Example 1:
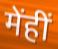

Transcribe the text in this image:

मेंहीं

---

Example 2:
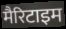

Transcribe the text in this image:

मैरिटाइम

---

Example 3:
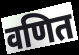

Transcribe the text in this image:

वणित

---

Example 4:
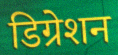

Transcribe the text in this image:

डिग्रेशन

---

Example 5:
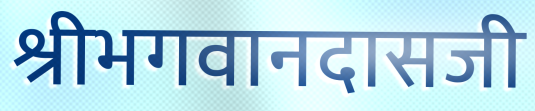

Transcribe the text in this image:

श्रीभगवानदासजी